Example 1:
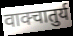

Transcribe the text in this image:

वाक्चातुर्य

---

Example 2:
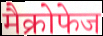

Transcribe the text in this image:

मैक्रोफेज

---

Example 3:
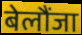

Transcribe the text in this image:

बेलौंजा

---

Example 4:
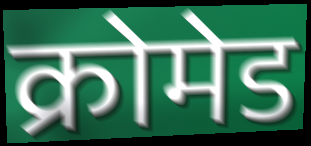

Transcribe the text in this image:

क्रोमेड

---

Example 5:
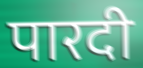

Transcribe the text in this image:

पारदी